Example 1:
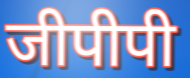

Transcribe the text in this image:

जीपीपी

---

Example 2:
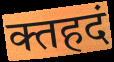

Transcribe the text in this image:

क्तहदं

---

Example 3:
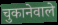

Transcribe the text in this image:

चुकानेवाले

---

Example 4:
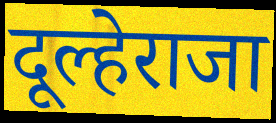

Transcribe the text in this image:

दूल्हेराजा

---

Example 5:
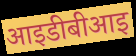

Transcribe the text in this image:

आइडीबीआइ